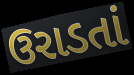
ઉરાડતાં